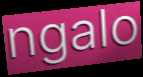
ngalo